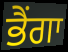
ਭੈਂਗਾ